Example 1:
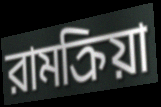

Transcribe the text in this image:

রামক্রিয়া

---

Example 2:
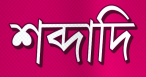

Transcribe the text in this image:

শব্দাদি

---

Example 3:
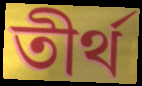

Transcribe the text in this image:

তীর্থ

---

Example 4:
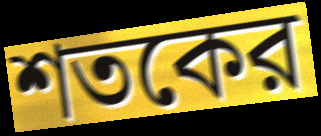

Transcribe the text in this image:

শতকের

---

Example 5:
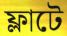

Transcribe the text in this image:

ফ্লাটে